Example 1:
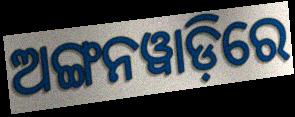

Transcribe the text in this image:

ଅଙ୍ଗନୱାଡ଼ିରେ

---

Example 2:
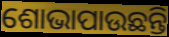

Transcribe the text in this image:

ଶୋଭାପାଉଛନ୍ତି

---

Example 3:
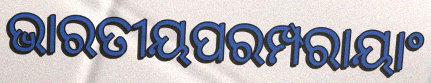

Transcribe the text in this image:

ଭାରତୀୟପରମ୍ପରାୟାଂ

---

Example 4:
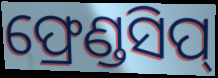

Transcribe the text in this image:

ଫ୍ରେଣ୍ଡସିପ୍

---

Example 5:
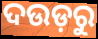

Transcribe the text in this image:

ଦଉଡ଼ରୁ